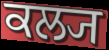
ਕਲ੍ਯ